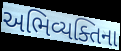
અભિવ્યક્તિના